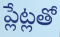
ప్లేట్లతో